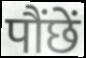
पौंछें